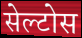
सेल्टोस